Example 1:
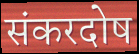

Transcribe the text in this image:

संकरदोष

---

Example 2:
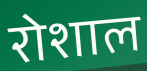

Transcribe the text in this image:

रोशाल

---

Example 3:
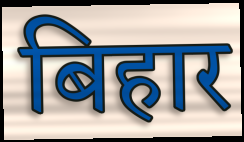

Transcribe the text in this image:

बिहार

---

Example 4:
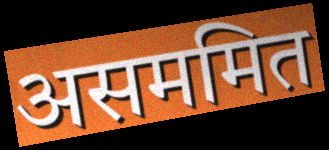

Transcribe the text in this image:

असममित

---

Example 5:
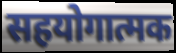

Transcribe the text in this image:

सहयोगात्मक